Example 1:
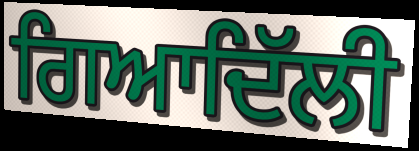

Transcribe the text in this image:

ਗਿਆਦਿੱਲੀ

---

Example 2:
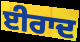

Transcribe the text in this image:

ਈਰਾਦ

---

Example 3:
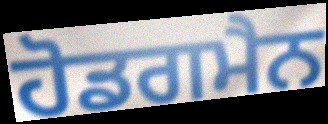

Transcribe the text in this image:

ਹੋਡਗਮੈਨ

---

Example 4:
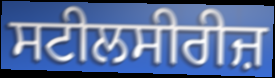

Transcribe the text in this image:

ਸਟੀਲਸੀਰੀਜ਼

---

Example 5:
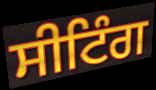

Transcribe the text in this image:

ਸੀਟਿੰਗ